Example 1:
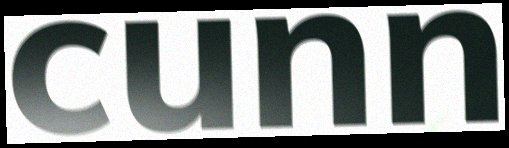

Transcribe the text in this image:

cunn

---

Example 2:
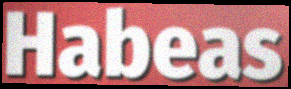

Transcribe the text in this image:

Habeas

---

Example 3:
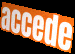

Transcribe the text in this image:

accede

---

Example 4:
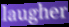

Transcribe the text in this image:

laugher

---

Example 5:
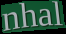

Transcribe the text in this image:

nhal